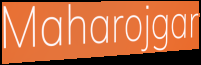
Maharojgar